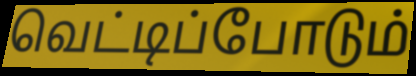
வெட்டிப்போடும்